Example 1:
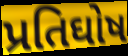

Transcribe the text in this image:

પ્રતિઘોષ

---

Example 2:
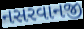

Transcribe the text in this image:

નસરવાનજી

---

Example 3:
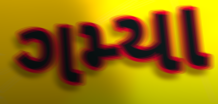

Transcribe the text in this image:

ગમ્યા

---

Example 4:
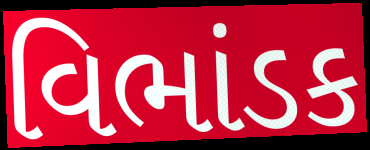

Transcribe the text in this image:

વિભાંડક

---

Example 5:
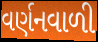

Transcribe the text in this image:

વર્ણનવાળી